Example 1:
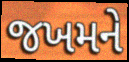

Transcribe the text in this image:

જખમને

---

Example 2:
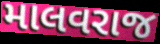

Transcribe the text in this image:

માલવરાજ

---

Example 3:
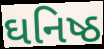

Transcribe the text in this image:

ઘનિષ્ઠ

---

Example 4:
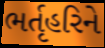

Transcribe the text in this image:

ભર્તૃહરિને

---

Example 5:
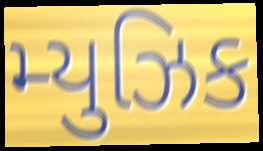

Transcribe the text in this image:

મ્યુઝિક